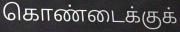
கொண்டைக்குக்